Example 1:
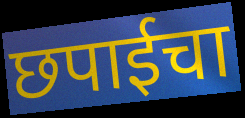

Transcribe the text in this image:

छपाईचा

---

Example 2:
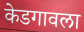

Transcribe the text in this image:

केडगावला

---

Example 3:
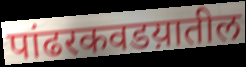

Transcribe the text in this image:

पांढरकवडय़ातील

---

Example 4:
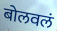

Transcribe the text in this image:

बोलवलं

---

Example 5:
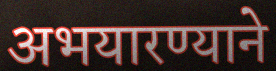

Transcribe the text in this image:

अभयारण्याने